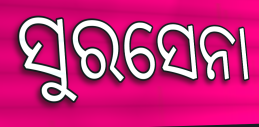
ସୁରସେନା